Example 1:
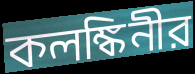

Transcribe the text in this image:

কলঙ্কিনীর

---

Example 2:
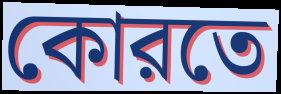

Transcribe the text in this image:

কোরতে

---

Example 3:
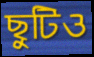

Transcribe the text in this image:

ছুটিও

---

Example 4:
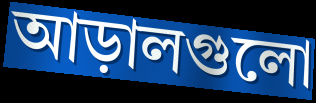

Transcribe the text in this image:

আড়ালগুলো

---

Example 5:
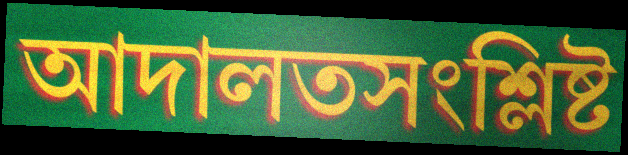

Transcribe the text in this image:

আদালতসংশ্লিষ্ট